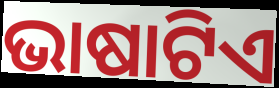
ଭାଷାଟିଏ